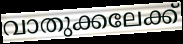
വാതുക്കലേക്ക്